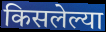
किसलेल्या